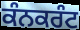
ਕੰਨਕਰੰਟ